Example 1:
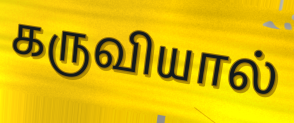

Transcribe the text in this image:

கருவியால்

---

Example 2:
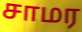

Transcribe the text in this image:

சாமர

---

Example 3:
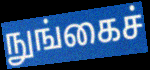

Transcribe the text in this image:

நுங்கைச்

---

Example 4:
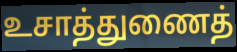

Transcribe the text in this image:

உசாத்துணைத்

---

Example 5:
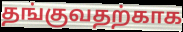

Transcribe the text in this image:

தங்குவதற்காக